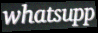
whatsupp